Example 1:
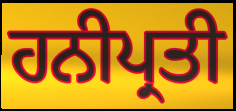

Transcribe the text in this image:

ਹਨੀਪ੍ਰਤੀ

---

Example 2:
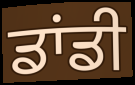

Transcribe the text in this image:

ਡਾਂਡੀ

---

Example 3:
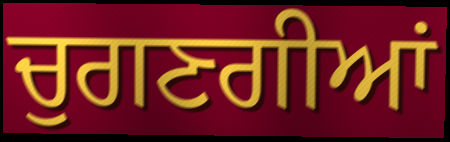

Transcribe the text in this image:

ਚੁਗਣਗੀਆਂ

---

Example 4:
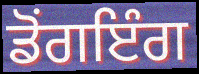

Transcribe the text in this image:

ਡੋਂਗਇੰਗ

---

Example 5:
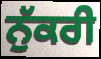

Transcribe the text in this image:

ਨੁੱਕਰੀ